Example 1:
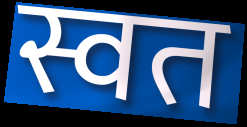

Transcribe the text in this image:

स्वत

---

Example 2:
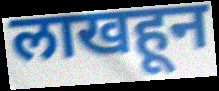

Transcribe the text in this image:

लाखहून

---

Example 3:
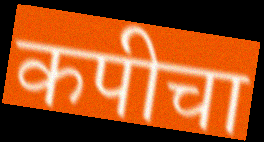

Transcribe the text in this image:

कपीचा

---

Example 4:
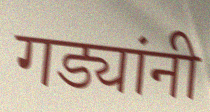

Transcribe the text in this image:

गड्यांनी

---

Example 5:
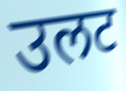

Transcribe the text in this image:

उलट